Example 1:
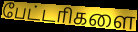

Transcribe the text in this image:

பேட்டரிகளை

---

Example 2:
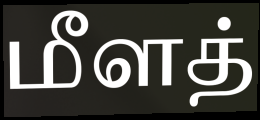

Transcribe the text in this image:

மீளத்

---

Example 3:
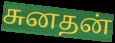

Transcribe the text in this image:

சுனதன்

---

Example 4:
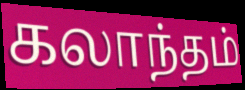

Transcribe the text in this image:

கலாந்தம்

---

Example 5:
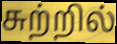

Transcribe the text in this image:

சுற்றில்